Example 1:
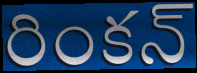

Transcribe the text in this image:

రింకన్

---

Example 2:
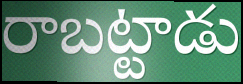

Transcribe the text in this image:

రాబట్టాడు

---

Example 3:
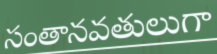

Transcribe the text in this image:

సంతానవతులుగా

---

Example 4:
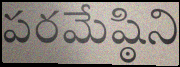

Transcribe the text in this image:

పరమేష్ఠిని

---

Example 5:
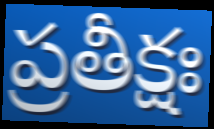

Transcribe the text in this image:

ప్రతీక్షః